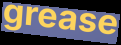
grease